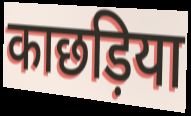
काछड़िया